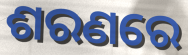
ଶରଣରେ